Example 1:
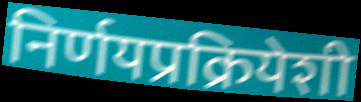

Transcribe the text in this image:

निर्णयप्रक्रियेशी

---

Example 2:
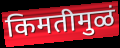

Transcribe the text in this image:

किमतीमुळं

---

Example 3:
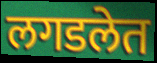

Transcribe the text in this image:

लगडलेत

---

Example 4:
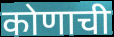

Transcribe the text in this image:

कोणाची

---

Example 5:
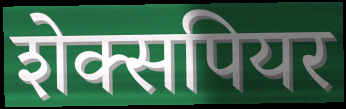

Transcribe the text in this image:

शेक्सपियर